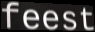
feest